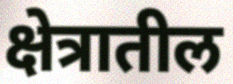
क्षेत्रातील